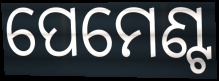
ପେମେଣ୍ଟ